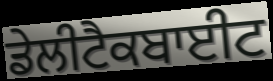
ਡੇਲੀਟੈਕਬਾਈਟ